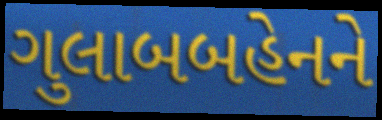
ગુલાબબહેનને